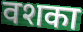
वशका